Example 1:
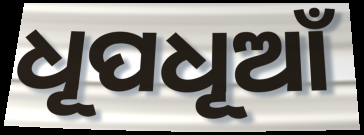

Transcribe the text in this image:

ଧୂପଧୂଆଁ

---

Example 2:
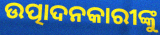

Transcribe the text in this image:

ଉତ୍ପାଦନକାରୀଙ୍କୁ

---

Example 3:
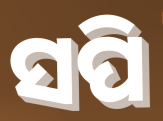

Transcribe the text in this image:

ସପି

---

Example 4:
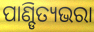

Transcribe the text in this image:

ପାଣ୍ଡିତ୍ୟଭରା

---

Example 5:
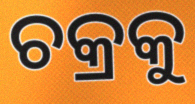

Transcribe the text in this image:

ଚକ୍ରକୁ